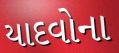
યાદવોના